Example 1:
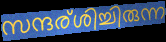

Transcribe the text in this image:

സന്ദര്ശിച്ചിരുന്ന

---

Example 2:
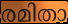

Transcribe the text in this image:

രമിതാ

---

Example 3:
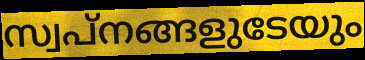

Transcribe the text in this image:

സ്വപ്നങ്ങളുടേയും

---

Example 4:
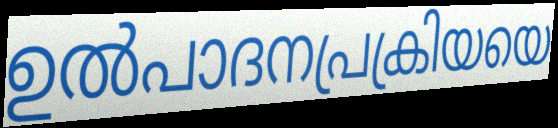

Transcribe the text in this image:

ഉൽപാദനപ്രക്രിയയെ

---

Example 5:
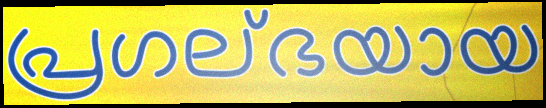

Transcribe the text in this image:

പ്രഗല്ഭയായ